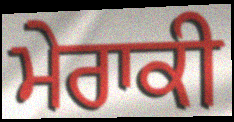
ਮੇਰਾਕੀ